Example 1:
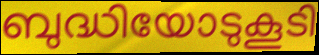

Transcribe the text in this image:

ബുദ്ധിയോടുകൂടി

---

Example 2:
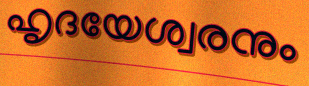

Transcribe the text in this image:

ഹൃദയേശ്വരനും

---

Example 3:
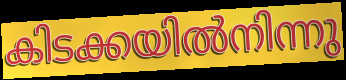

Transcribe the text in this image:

കിടക്കയിൽനിന്നു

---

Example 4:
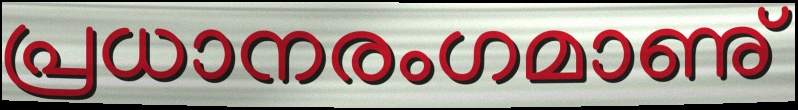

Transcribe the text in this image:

പ്രധാനരംഗമാണു്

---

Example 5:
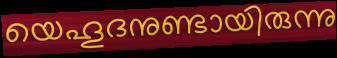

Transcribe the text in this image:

യെഹൂദനുണ്ടായിരുന്നു